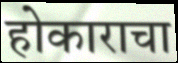
होकाराचा